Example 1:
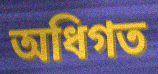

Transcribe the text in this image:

অধিগত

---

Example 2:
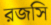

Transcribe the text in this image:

রজসি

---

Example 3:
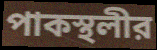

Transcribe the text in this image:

পাকস্থলীর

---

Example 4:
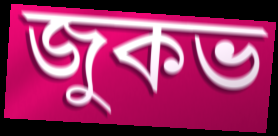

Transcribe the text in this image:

জুকভ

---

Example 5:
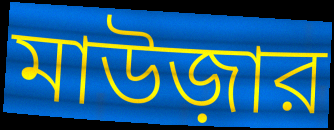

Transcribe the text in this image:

মাউজ়ার